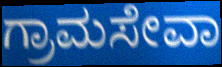
ಗ್ರಾಮಸೇವಾ